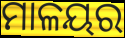
ମାଳୟର